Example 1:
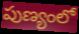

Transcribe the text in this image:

పుణ్యంలో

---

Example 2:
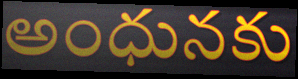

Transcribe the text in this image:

అంధునకు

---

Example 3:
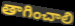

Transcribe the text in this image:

తాగించాలి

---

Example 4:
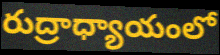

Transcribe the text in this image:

రుద్రాధ్యాయంలో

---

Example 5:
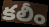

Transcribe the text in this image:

కలీం